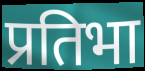
प्रतिभा